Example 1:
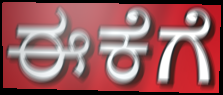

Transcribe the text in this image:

ಈಕೆಗೆ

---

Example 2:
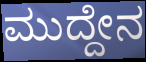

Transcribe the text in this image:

ಮುದ್ದೇನ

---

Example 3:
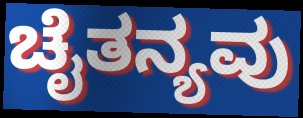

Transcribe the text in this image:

ಚೈತನ್ಯವು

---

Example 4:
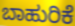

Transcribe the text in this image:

ಬಾಹುರಿಕೆ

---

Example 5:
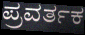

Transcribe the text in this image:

ಪ್ರವರ್ತಕ